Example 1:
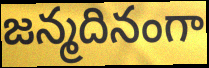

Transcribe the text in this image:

జన్మదినంగా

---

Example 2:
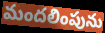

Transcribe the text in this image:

మందలింపును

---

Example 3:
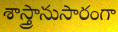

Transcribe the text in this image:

శాస్త్రానుసారంగా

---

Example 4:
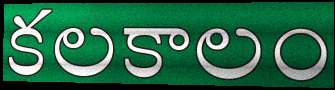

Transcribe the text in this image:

కలకాలం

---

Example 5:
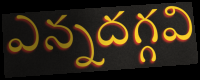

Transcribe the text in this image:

ఎన్నదగ్గవి